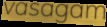
vasagam